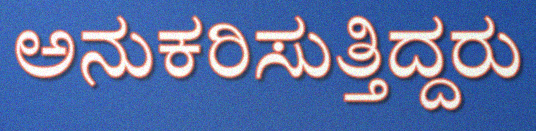
ಅನುಕರಿಸುತ್ತಿದ್ದರು